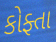
કોફ્તા